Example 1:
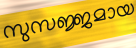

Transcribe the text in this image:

സുസജ്ജമായ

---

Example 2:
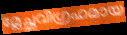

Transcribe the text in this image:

മ്ലേച്ഛവിഗ്രഹമായ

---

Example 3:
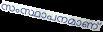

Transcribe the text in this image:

സംസ്ഥാപനമാണ്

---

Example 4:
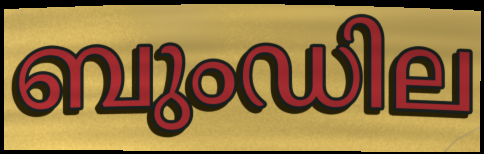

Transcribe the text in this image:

ബുംഡില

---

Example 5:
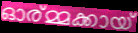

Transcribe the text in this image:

ഓര്മ്മക്കായ്